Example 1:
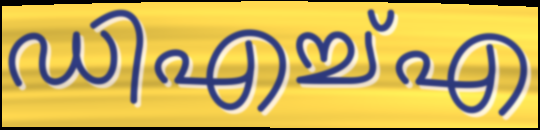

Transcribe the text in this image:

ഡിഎച്ച്എ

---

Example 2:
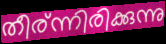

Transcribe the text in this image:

തീര്ന്നിരിക്കുന്നു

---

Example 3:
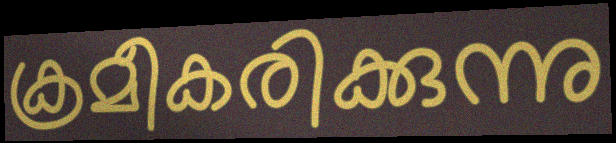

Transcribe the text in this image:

ക്രമീകരിക്കുന്നു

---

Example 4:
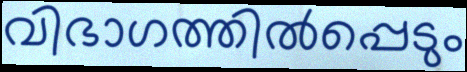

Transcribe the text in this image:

വിഭാഗത്തിൽപ്പെടും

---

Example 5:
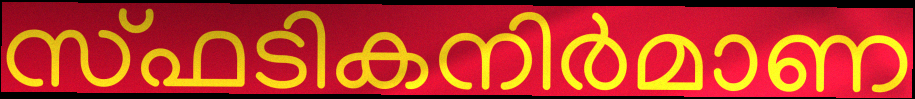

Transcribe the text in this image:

സ്ഫടികനിർമാണ